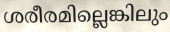
ശരീരമില്ലെങ്കിലും